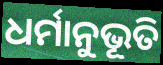
ଧର୍ମାନୁଭୂତି